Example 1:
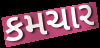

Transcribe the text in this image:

કમચાર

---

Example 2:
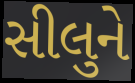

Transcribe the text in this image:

સીલુને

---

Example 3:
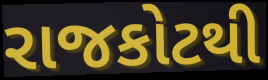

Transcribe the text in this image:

રાજકોટથી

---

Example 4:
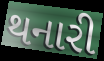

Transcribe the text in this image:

થનારી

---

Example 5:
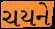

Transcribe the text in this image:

ચયને